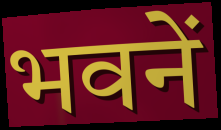
भवनें